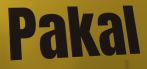
Pakal